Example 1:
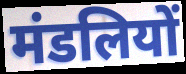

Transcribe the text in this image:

मंडलियों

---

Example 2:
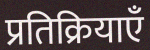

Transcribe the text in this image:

प्रतिक्रियाएँ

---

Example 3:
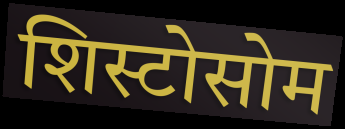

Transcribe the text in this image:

शिस्टोसोम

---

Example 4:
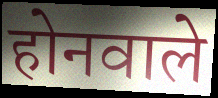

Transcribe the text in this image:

होनवाले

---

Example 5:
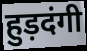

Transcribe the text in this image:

हुड़दंगी